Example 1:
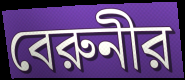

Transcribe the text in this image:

বেরুনীর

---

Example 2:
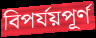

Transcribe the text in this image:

বিপর্যয়পূর্ণ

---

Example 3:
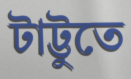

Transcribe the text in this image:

টাট্টুতে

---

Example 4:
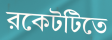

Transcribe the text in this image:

রকেটটিতে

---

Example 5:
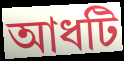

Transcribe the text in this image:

আধটি